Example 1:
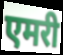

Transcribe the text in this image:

एमरी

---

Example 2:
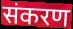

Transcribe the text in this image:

संकरण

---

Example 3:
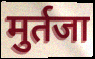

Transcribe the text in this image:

मुर्तजा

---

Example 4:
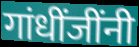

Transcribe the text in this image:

गांधींजींनी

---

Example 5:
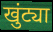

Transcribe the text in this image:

खुंट्या